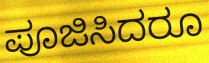
ಪೂಜಿಸಿದರೂ